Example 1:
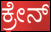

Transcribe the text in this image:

ಕ್ರೇನ್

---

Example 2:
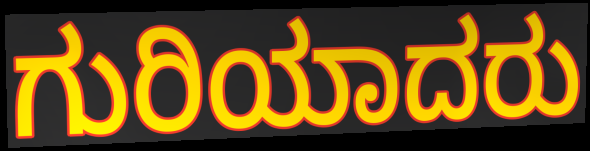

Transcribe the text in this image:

ಗುರಿಯಾದರು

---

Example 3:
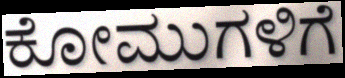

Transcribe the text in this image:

ಕೋಮುಗಳಿಗೆ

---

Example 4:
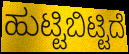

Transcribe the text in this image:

ಹುಟ್ಟಿಬಿಟ್ಟಿದೆ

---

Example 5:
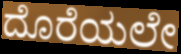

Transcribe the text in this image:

ದೊರೆಯಲೇ